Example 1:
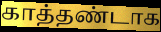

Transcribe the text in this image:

காத்தண்டாக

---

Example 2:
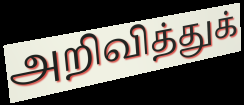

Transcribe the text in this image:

அறிவித்துக்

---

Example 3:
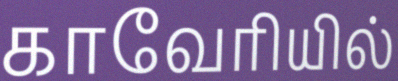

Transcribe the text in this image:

காவேரியில்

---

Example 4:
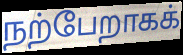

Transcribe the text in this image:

நற்பேறாகக்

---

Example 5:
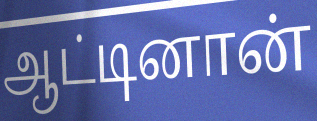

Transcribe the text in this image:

ஆட்டினான்